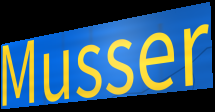
Musser